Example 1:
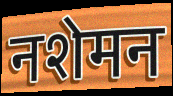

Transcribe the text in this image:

नशेमन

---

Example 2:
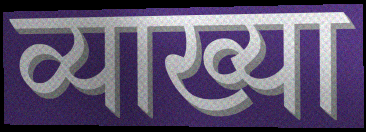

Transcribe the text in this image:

व्याख्या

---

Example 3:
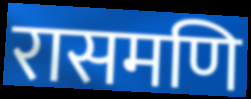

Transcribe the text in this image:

रासमणि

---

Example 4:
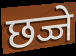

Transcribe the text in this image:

छज्जे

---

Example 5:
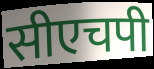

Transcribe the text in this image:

सीएचपी